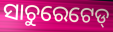
ସାଚୁରେଟେଡ୍